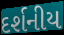
દર્શનીય